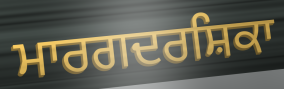
ਮਾਰਗਦਰਸ਼ਿਕਾ